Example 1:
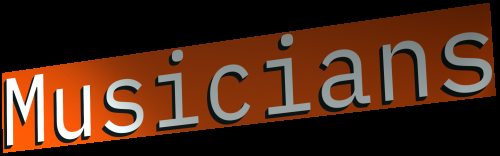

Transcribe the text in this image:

Musicians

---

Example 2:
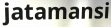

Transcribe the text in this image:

jatamansi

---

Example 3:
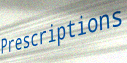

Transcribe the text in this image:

Prescriptions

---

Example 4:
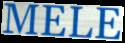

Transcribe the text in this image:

MELE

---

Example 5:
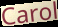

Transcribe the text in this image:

Carol